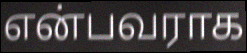
என்பவராக